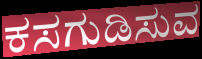
ಕಸಗುಡಿಸುವ